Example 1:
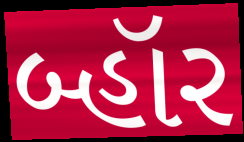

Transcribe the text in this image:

બ્હૉર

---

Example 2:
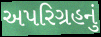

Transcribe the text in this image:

અપરિગ્રહનું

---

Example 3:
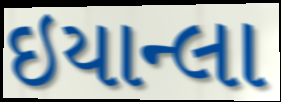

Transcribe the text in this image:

ઇયાન્લા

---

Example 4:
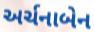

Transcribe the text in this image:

અર્ચનાબેન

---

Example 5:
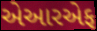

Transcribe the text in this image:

એઆરએફ